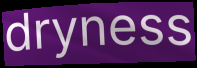
dryness